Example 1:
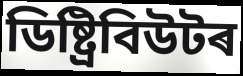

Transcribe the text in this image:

ডিষ্ট্ৰিবিউটৰ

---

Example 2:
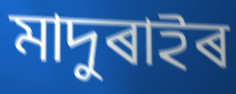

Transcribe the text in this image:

মাদুৰাইৰ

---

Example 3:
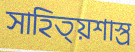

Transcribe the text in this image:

সাহিত্য়শাস্ত্ৰ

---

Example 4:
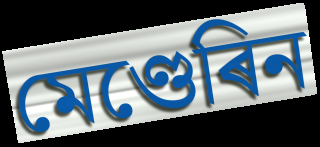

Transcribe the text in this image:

মেণ্ডেৰিন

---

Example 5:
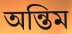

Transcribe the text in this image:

অন্তিম